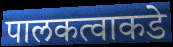
पालकत्वाकडे